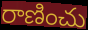
రాణించు